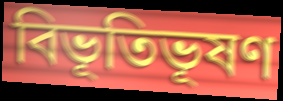
বিভূতিভূষণ